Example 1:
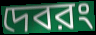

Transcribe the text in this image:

দেবরং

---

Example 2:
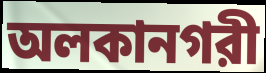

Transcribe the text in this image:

অলকানগরী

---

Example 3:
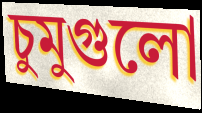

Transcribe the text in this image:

চুমুগুলো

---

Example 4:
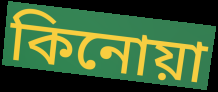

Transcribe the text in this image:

কিনোয়া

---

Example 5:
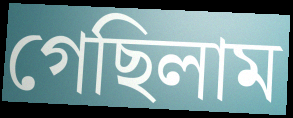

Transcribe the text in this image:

গেছিলাম